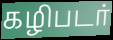
கழிபடர்